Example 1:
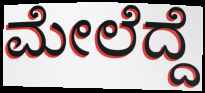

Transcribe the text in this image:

ಮೇಲೆದ್ದೆ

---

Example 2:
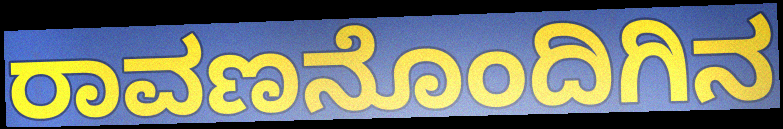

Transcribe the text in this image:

ರಾವಣನೊಂದಿಗಿನ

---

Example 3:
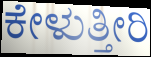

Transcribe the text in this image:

ಕೇಳುತ್ತೀರಿ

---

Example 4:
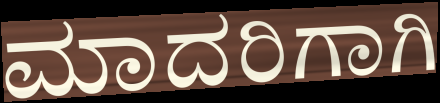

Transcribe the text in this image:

ಮಾದರಿಗಾಗಿ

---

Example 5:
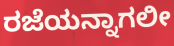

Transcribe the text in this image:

ರಜೆಯನ್ನಾಗಲೀ